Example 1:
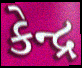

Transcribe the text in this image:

કેન્દ્ર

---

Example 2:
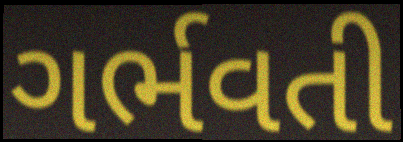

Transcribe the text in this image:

ગર્ભવતી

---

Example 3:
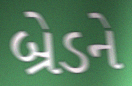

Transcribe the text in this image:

બ્રેડને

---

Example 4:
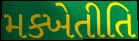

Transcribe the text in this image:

મક્ખેતીતિ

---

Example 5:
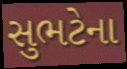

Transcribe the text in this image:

સુભટેના